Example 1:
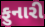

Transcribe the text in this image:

ફુનારી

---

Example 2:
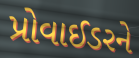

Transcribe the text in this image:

પ્રોવાઈડરને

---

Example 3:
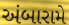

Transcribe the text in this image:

અંબારામે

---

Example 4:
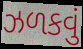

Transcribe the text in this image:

ઝળકવું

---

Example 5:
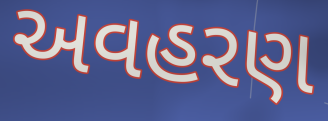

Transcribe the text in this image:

અવહરણ